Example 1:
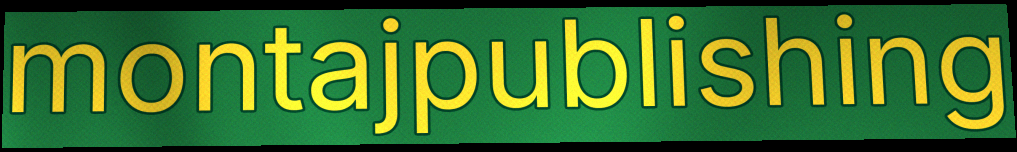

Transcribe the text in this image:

montajpublishing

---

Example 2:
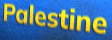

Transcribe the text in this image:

Palestine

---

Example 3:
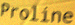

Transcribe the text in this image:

Proline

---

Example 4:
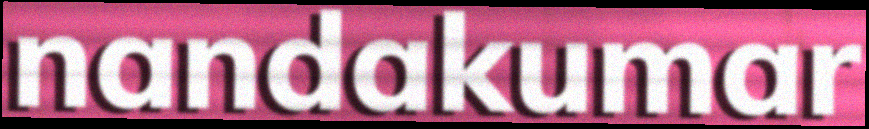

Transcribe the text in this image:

nandakumar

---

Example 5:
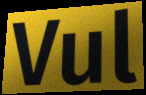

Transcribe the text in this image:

Vul